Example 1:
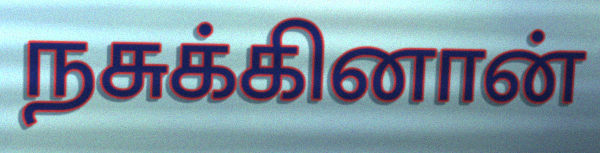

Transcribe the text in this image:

நசுக்கினான்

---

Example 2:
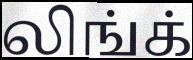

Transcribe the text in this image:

லிங்க்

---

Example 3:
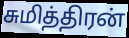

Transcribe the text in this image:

சுமித்திரன்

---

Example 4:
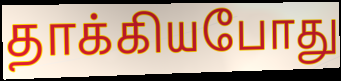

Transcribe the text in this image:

தாக்கியபோது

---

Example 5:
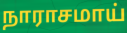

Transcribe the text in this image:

நாராசமாய்